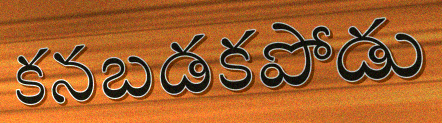
కనబడకపోడు